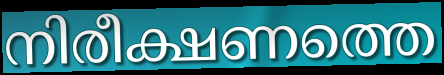
നിരീക്ഷണത്തെ